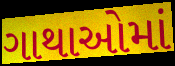
ગાથાઓમાં